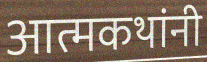
आत्मकथांनी